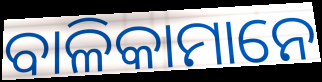
ବାଳିକାମାନେ